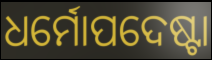
ଧର୍ମୋପଦେଷ୍ଟା